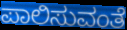
ಪಾಲಿಸುವಂತೆ